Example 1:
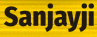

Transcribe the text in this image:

Sanjayji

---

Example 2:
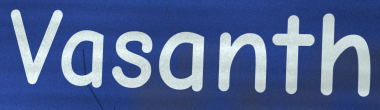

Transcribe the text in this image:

Vasanth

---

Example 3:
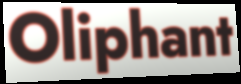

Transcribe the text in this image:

Oliphant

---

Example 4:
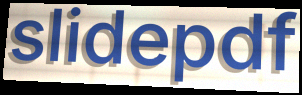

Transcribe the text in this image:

slidepdf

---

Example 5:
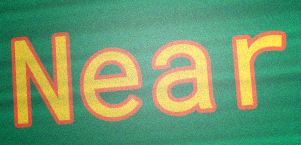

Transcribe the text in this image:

Near